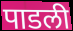
पाडली